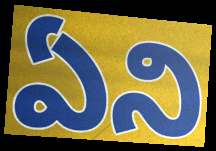
ఏని